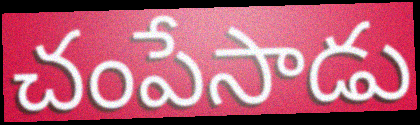
చంపేసాడు